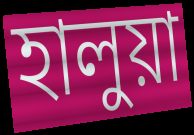
হালুয়া